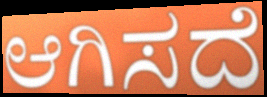
ಆಗಿಸದೆ